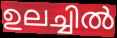
ഉലച്ചിൽ